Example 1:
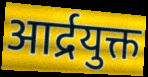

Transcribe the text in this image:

आर्द्रयुक्त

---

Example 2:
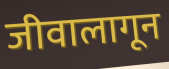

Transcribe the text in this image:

जीवालागून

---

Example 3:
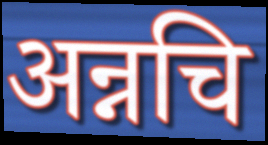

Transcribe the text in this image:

अन्नचि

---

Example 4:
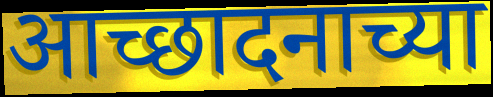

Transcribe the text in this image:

आच्छादनाच्या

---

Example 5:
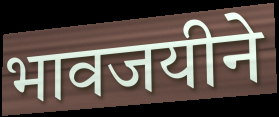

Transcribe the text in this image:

भावजयीने